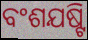
ବଂଶଯଷ୍ଟି